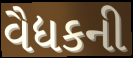
વૈદ્યકની